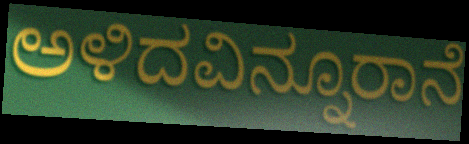
ಅಳಿದವಿನ್ನೂರಾನೆ